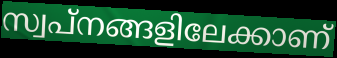
സ്വപ്നങ്ങളിലേക്കാണ്